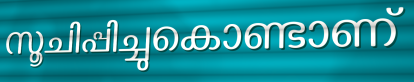
സൂചിപ്പിച്ചുകൊണ്ടാണ്